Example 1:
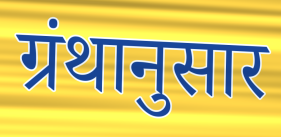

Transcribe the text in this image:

ग्रंथानुसार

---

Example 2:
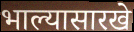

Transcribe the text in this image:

भाल्यासारखे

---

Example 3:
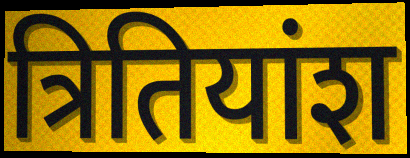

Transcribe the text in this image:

त्रितियांश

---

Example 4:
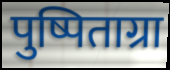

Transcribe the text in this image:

पुष्पिताग्रा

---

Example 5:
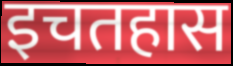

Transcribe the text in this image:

इचतहास